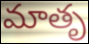
మాతృ